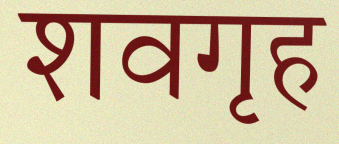
शवगृह